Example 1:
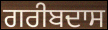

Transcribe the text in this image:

ਗਰੀਬਦਾਸ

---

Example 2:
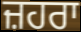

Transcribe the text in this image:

ਜ਼ਹਰਾ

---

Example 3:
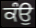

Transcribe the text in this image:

ਕੰਉ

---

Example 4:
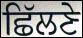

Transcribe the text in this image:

ਛਿੱਲਣੇ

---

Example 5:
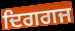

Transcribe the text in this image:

ਦਿਗਗਜ